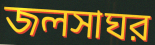
জলসাঘর